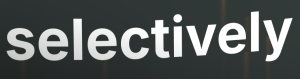
selectively